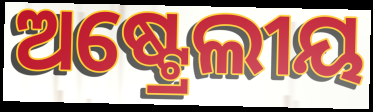
ଅଷ୍ଟ୍ରେଲୀୟ